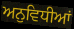
ਅਨੁਵਿਧੀਆਂ